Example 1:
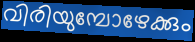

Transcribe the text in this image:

വിരിയുമ്പോഴേക്കും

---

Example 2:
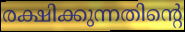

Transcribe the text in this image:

രക്ഷിക്കുന്നതിന്റെ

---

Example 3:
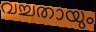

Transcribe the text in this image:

വച്ചതായും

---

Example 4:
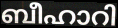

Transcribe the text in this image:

ബീഹാറി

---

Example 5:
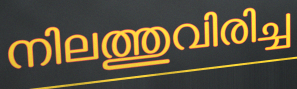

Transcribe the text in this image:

നിലത്തുവിരിച്ച